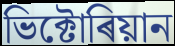
ভিক্টোৰিয়ান